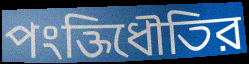
পংক্তিধৌতির